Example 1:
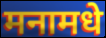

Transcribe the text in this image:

मनामधे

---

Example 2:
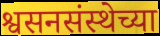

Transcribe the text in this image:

श्वसनसंस्थेच्या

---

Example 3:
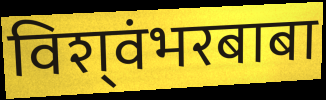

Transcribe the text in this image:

विश्वंभरबाबा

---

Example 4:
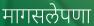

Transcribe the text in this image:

मागसलेपणा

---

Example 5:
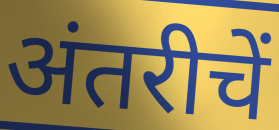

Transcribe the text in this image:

अंतरीचें